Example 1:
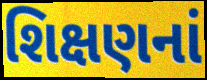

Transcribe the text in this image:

શિક્ષણનાં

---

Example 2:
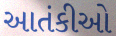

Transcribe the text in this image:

આતંકીઓ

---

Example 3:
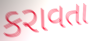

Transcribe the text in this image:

કરાવતા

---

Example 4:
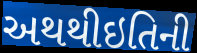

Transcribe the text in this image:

અથથીઇતિની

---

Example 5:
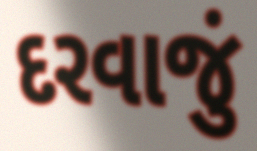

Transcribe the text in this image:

દરવાજું